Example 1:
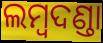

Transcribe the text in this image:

ଲମ୍ୱଦଣ୍ଡା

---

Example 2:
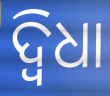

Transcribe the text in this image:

ଦ୍ବିଧା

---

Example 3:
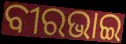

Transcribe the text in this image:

ବୀରଭାଇ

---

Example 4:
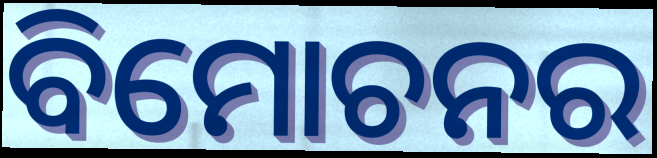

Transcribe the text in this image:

ବିମୋଚନର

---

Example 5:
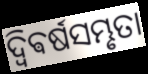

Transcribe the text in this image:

ଦ୍ଵିଵର୍ଷସମ୍ଭୃତା